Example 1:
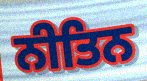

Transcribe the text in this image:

ਨੀਤਿਨ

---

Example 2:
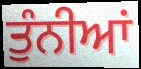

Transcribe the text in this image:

ਤੁੰਨੀਆਂ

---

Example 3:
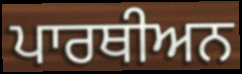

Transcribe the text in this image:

ਪਾਰਥੀਅਨ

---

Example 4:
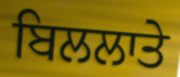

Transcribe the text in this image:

ਬਿਲਲਾਤੇ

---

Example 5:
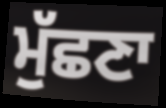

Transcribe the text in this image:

ਮੁੱਛਣਾ